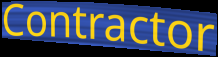
Contractor